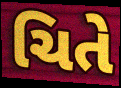
ચિતે